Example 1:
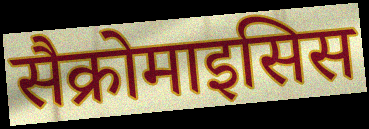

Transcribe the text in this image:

सैक्रोमाइसिस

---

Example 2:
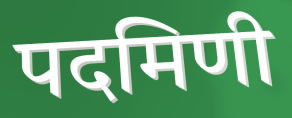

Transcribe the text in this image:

पदमिणी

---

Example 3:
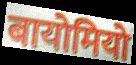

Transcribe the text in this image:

बायोमियो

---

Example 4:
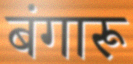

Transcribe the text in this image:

बंगारू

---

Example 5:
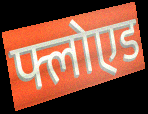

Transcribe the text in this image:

फ्लोएड